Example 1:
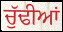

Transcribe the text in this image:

ਚੁੱਢੀਆਂ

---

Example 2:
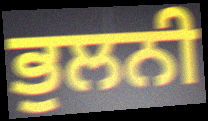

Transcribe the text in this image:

ਭੁਲਨੀ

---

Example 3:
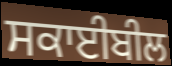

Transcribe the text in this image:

ਸਕਾਈਬੀਲ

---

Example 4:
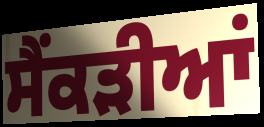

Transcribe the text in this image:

ਸੈਂਕੜੀਆਂ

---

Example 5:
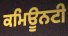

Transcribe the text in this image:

ਕਮਿਊਨਟੀ